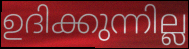
ഉദിക്കുന്നില്ല